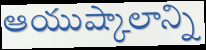
ఆయుష్కాలాన్ని